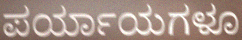
ಪರ್ಯಾಯಗಳೂ